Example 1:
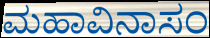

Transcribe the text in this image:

ಮಹಾವಿನಾಸಂ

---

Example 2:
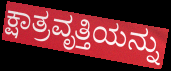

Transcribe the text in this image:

ಕ್ಷಾತ್ರವೃತ್ತಿಯನ್ನು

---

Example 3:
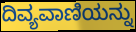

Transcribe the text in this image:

ದಿವ್ಯವಾಣಿಯನ್ನು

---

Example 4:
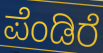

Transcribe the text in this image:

ಪೆಂಡಿರೆ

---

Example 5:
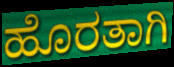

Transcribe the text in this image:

ಹೊರತಾಗಿ